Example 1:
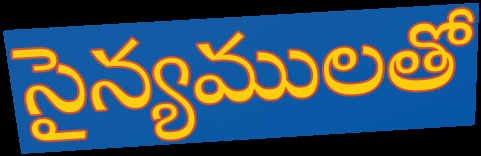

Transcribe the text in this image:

సైన్యములతో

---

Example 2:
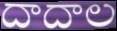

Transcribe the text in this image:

దాదాల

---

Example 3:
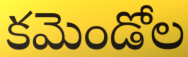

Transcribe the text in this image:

కమెండోల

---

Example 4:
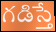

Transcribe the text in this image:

గడిస్తే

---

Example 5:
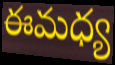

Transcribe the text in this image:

ఈమధ్య